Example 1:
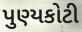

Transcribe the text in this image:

પુણ્યકોટી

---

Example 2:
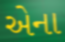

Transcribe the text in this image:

એના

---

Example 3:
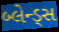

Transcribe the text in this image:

બ્લેન્ડ્સ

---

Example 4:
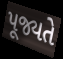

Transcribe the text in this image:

પૂજ્યતે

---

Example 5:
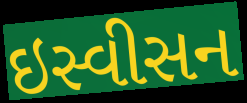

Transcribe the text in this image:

ઇસ્વીસન